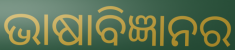
ଭାଷାବିଜ୍ଞାନର